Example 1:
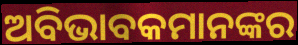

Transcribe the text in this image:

ଅବିଭାବକମାନଙ୍କର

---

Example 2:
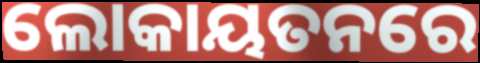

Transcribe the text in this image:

ଲୋକାୟତନରେ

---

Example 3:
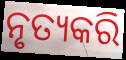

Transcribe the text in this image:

ନୃତ୍ୟକରି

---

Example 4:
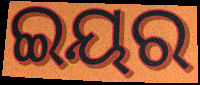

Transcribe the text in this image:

ଇୟର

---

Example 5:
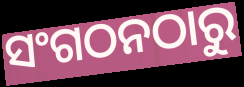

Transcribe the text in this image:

ସଂଗଠନଠାରୁ